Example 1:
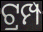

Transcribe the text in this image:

ଟ୍ରମ୍ପ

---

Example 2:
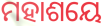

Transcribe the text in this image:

ମହାଶୟେ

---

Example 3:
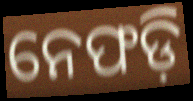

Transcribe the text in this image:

ନେଫଡ଼ି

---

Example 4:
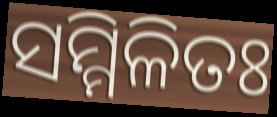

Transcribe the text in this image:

ସମ୍ମିଳିତଃ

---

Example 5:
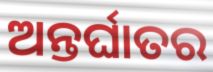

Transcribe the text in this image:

ଅନ୍ତର୍ଘାତର